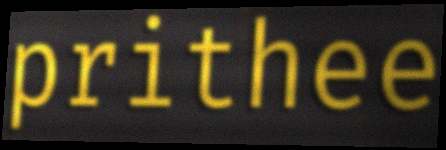
prithee